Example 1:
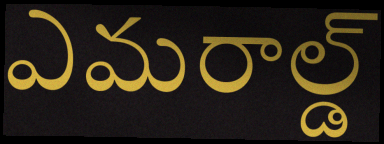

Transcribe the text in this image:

ఎమరాల్డ్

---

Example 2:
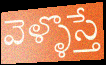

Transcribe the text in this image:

వెళ్ళొస్తే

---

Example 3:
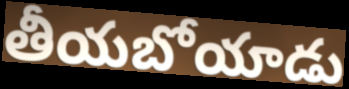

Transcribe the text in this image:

తీయబోయాడు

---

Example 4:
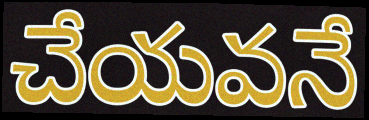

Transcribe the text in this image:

చేయవనే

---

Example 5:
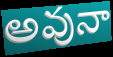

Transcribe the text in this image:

అవునా